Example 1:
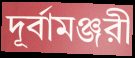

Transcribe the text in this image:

দূর্বামঞ্জরী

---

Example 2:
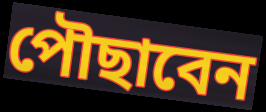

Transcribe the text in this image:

পৌছাবেন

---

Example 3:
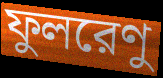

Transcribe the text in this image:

ফুলরেণু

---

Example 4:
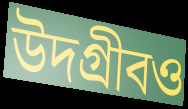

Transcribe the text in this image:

উদগ্রীবও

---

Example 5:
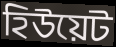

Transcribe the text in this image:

হিউয়েট